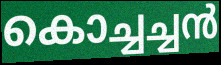
കൊച്ചച്ചൻ